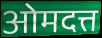
ओमदत्त